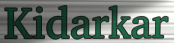
Kidarkar